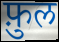
फ़ुल